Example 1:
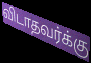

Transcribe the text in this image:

விடாதவர்க்கு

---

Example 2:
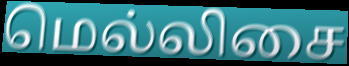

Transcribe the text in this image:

மெல்லிசை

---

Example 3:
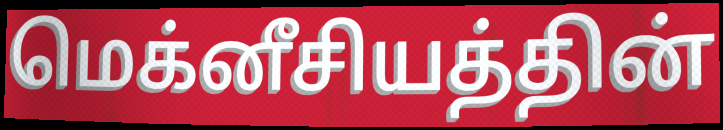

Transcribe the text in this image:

மெக்னீசியத்தின்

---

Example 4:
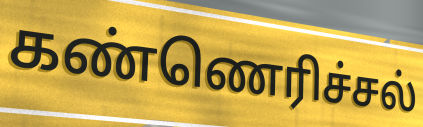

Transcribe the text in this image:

கண்ணெரிச்சல்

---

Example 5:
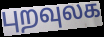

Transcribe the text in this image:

புறவுலக